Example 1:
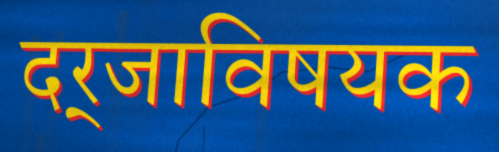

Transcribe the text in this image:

दर्जाविषयक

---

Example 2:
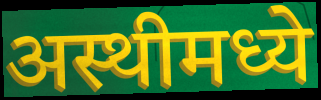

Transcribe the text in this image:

अस्थीमध्ये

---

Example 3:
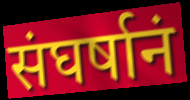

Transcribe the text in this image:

संघर्षानं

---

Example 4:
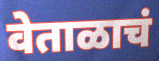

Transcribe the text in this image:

वेताळाचं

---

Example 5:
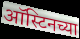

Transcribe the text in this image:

ऑस्टिनच्या